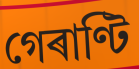
গেৰাণ্টি